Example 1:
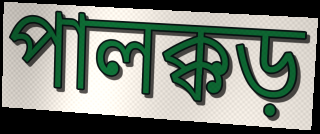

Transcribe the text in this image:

পালক্কড়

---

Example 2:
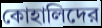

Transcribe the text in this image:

কোহালিদের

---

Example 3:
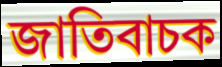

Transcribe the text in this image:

জাতিবাচক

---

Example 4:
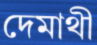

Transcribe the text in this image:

দেমাথী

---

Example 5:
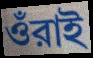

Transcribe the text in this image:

ওঁরাই